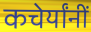
कचेर्यांनीं